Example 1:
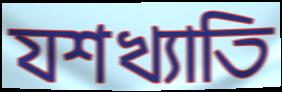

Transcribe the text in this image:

যশখ্যাতি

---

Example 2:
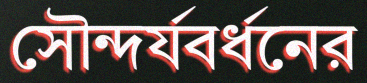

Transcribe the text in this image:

সৌন্দর্যবর্ধনের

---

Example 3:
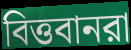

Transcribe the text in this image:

বিত্তবানরা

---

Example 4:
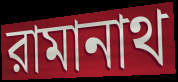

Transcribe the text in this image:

রামানাথ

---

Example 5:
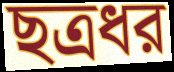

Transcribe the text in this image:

ছত্রধর